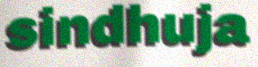
sindhuja